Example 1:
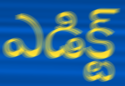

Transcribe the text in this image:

ఎడిక్ట్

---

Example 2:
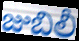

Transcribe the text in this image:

జుబిలీ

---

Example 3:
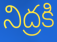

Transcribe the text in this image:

నిద్రకి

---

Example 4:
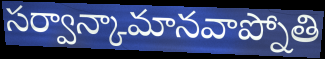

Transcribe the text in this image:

సర్వాన్కామానవాప్నోతి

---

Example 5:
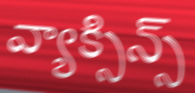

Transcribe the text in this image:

వ్యాక్సిన్స్